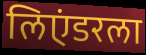
लिएंडरला